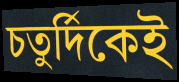
চতুর্দিকেই